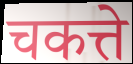
चकत्ते